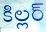
కిల్లర్